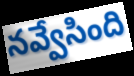
నవ్వేసింది